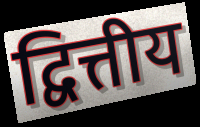
द्वित्तीय